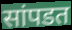
सांपडत